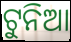
ଟୁନିଆ